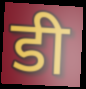
डी